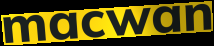
macwan